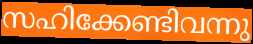
സഹിക്കേണ്ടിവന്നു